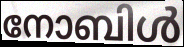
നോബിൾ